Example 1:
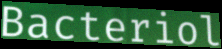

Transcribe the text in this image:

Bacteriol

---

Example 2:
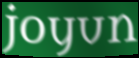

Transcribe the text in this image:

joyun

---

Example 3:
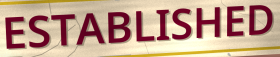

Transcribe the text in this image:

ESTABLISHED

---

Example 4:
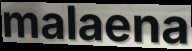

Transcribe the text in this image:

malaena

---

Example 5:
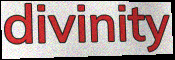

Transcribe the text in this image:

divinity